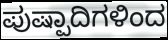
ಪುಷ್ಪಾದಿಗಳಿಂದ